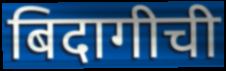
बिदागीची